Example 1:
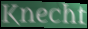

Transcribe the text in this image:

Knecht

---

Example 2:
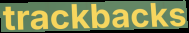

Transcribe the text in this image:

trackbacks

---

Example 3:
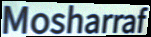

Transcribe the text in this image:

Mosharraf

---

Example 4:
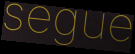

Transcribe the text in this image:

segue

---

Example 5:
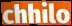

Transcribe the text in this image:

chhilo